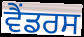
ਵੈਂਡਰਸ